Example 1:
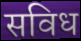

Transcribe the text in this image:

सविध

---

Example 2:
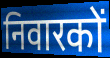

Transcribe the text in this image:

निवारकों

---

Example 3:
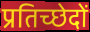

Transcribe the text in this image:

प्रतिच्छेदों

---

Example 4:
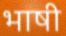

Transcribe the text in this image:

भाषी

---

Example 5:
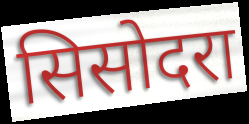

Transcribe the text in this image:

सिसोदरा